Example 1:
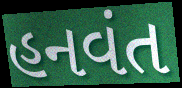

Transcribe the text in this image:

હનવંત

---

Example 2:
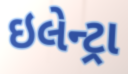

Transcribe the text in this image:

ઇલેન્ટ્રા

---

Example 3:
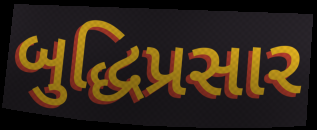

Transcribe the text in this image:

બુદ્ધિપ્રસાર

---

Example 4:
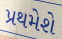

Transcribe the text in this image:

પ્રથમેશે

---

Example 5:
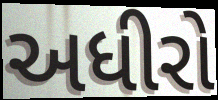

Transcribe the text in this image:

અધીરો